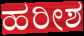
ಹರೀಶ